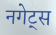
नगेट्स